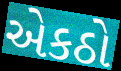
એકઠો